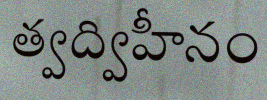
త్వద్విహీనం